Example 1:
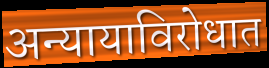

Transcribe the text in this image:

अन्यायाविरोधात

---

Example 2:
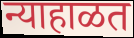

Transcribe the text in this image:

न्याहाळत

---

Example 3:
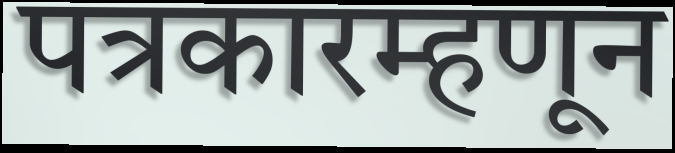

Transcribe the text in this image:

पत्रकारम्हणून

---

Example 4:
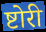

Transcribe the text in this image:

ष्टोरी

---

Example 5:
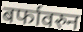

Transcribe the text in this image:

बर्फावरुन